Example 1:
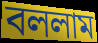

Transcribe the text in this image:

বললাম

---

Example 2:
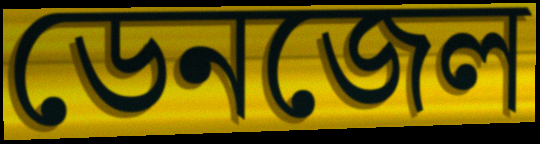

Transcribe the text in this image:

ডেনজেল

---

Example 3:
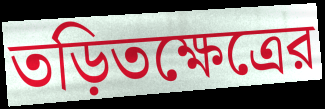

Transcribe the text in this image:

তড়িতক্ষেত্রের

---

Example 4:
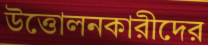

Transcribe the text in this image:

উত্তোলনকারীদের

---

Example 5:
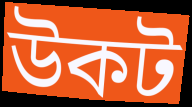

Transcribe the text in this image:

উকট